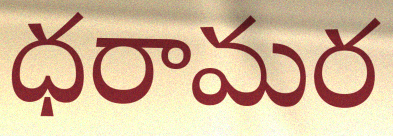
ధరామర